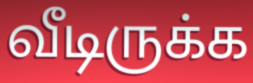
வீடிருக்க